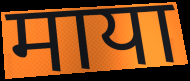
माया